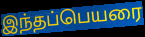
இந்தப்பெயரை